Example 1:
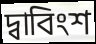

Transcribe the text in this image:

দ্বাবিংশ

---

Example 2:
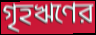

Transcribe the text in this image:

গৃহঋণের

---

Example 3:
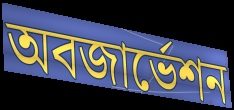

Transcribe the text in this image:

অবজার্ভেশন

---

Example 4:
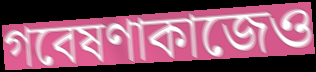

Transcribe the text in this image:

গবেষণাকাজেও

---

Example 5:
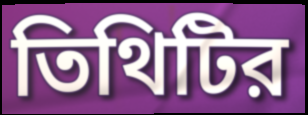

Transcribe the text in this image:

তিথিটির